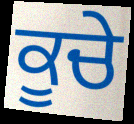
ਕੂਚੇ